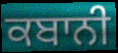
ਕਬਾਨੀ